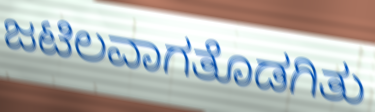
ಜಟಿಲವಾಗತೊಡಗಿತು